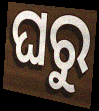
ଘରୁ